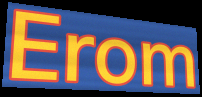
Erom